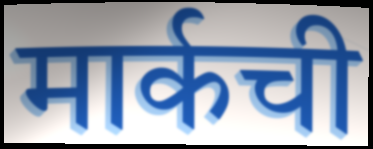
मार्कची